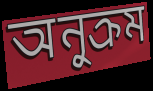
অনুক্ৰম